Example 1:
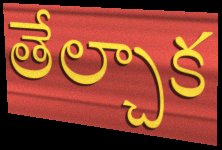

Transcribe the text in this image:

తేల్చాక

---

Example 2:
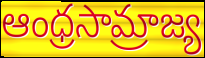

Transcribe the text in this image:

ఆంధ్రసామ్రాజ్య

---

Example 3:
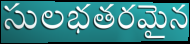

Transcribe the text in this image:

సులభతరమైన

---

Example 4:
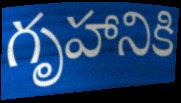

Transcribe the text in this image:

గృహానికి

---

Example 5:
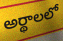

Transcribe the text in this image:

అర్థాలలో